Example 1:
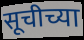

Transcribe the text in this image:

सूचीच्या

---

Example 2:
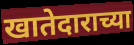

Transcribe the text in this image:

खातेदाराच्या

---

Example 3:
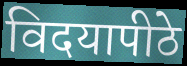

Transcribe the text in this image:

विदयापीठे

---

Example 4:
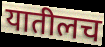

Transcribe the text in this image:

यातीलच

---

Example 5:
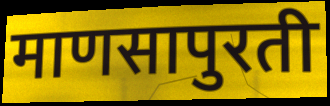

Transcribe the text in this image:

माणसापुरती